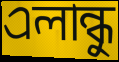
এলান্ধু